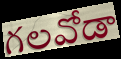
గలవోడా